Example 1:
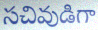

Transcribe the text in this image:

సచివుడిగా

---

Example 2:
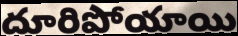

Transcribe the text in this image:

దూరిపోయాయి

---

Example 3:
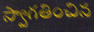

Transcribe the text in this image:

స్వాగతించిన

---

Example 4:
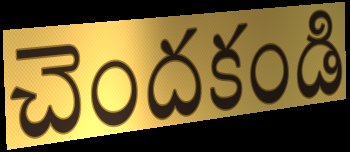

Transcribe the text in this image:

చెందకండి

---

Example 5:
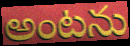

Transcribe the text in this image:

అంటను